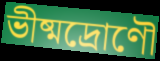
ভীষ্মদ্রোণৌ